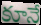
కూనే